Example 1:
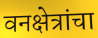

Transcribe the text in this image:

वनक्षेत्रांचा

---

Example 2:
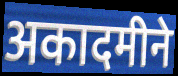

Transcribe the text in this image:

अकादमीने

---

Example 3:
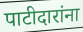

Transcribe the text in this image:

पाटीदारांना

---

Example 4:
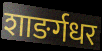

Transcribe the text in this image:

शाङर्गधर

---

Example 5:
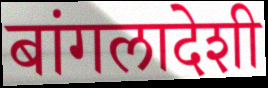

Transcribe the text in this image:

बांगलादेशी